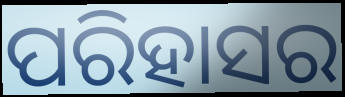
ପରିହାସର